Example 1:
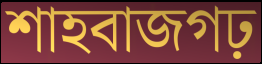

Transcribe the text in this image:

শাহবাজগঢ়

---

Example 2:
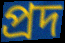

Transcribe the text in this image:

প্রদ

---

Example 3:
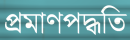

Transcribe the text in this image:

প্রমাণপদ্ধতি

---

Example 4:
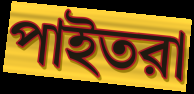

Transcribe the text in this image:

পাইতরা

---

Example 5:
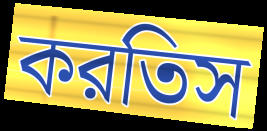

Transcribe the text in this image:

করতিস